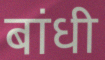
बांधी